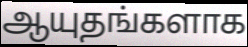
ஆயுதங்களாக